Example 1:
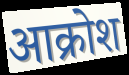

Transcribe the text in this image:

आक्रोश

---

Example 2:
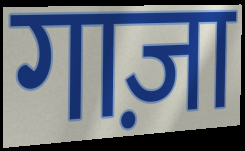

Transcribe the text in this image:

गाज़ा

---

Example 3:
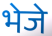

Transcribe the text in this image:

भेजे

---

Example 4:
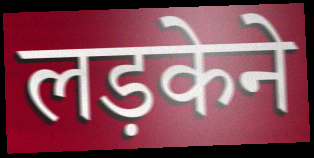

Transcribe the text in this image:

लड़केने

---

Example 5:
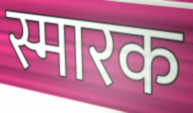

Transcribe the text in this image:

स्मारक